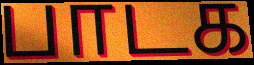
பாடக